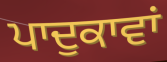
ਪਾਦੁਕਾਵਾਂ